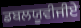
ਡਬਲਯੂਵੀਜੀਏ